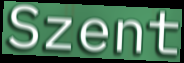
Szent